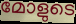
മോളുടെ